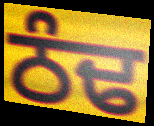
ਠੰਢ